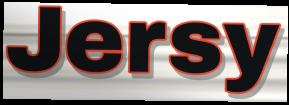
Jersy